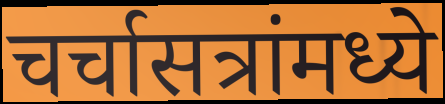
चर्चासत्रांमध्ये